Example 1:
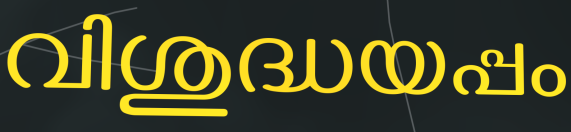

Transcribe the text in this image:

വിശുദ്ധയപ്പം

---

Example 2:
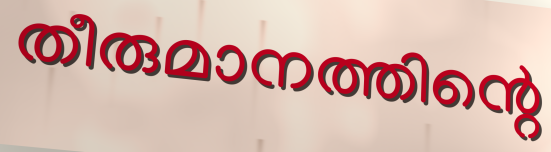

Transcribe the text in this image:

തീരുമാനത്തിന്റെ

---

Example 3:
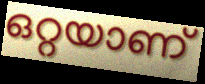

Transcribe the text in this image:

ഒറ്റയാണ്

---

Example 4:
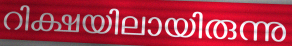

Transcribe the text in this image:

റിക്ഷയിലായിരുന്നു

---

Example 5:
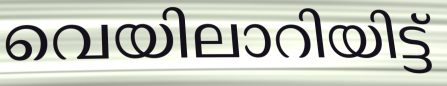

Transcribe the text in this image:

വെയിലാറിയിട്ട്